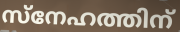
സ്നേഹത്തിന്